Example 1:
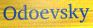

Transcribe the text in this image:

Odoevsky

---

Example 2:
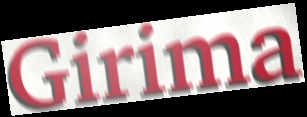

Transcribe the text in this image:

Girima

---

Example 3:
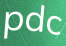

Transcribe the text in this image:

pdc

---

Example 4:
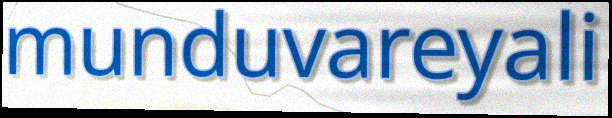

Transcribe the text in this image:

munduvareyali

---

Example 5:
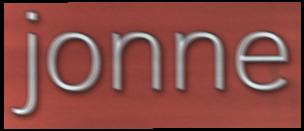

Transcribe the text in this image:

jonne